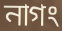
নাগং